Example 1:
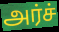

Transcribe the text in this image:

அர்ச்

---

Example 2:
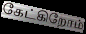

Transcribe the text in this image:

கேட்கிறோம்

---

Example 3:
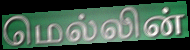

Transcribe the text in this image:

மெல்லின்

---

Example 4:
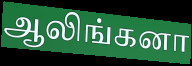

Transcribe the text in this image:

ஆலிங்கனா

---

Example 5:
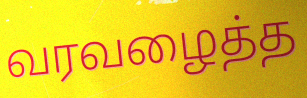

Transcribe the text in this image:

வரவழைத்த